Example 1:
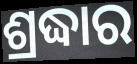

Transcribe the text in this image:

ଶ୍ରଦ୍ଧାର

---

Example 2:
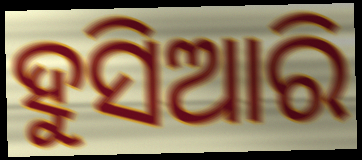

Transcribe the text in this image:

ହୁସିଆରି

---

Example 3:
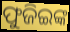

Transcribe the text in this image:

ଫୁଜିଇଙ୍କ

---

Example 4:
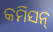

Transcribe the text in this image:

କମିସନ୍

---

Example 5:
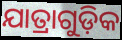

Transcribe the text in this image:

ଯାତ୍ରାଗୁଡ଼ିକ